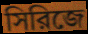
সিরিজে